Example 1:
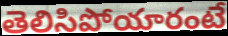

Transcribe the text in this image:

తెలిసిపోయారంటే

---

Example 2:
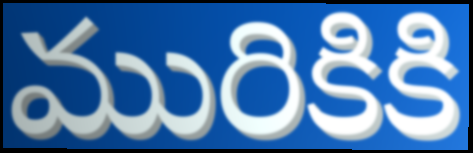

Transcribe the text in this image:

మురికికి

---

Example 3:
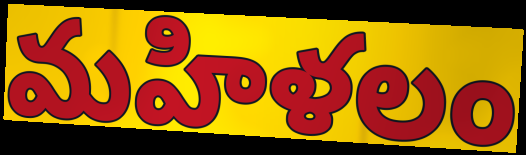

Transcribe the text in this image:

మహిళలం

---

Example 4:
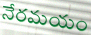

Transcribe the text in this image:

నేరమయం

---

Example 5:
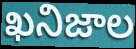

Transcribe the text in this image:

ఖనిజాల